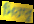
ਮਿਹਾਰੂ